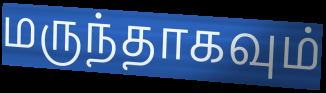
மருந்தாகவும்